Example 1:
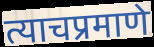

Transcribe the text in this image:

त्याचप्रमाणे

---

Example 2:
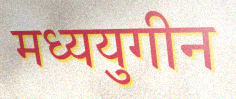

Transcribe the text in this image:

मध्ययुगीन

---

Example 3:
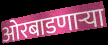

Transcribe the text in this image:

ओरबाडणाऱ्या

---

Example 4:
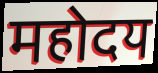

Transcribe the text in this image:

महोदय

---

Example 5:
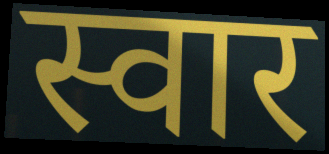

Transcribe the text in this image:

स्वार